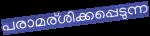
പരാമര്ശിക്കപ്പെടുന്ന